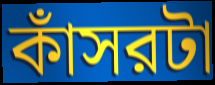
কাঁসরটা